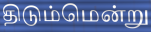
திடும்மென்று